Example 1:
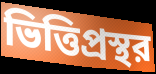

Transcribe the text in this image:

ভিত্তিপ্রস্থর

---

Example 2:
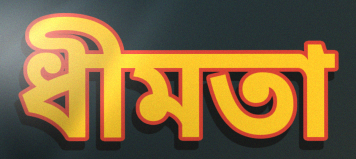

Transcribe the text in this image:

ধীমতা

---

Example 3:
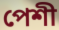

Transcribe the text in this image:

পেশী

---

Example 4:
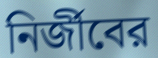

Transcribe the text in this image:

নির্জীবের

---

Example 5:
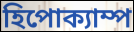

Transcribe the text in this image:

হিপোক্যাম্প